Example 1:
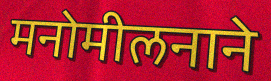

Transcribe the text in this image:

मनोमीलनाने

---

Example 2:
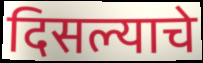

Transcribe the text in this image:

दिसल्याचे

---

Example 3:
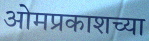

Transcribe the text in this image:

ओमप्रकाशच्या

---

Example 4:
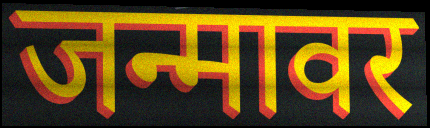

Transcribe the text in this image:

जन्मावर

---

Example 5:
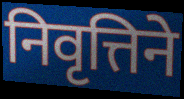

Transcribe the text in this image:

निवृत्तिने